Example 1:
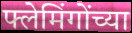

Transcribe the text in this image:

फ्लेमिंगोंच्या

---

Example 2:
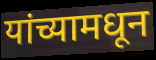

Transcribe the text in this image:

यांच्यामधून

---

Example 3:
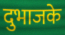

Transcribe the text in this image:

दुभाजके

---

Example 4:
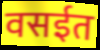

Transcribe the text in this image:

वसईत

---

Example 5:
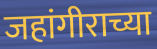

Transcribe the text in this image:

जहांगीराच्या